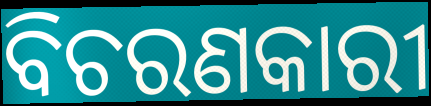
ବିଚରଣକାରୀ